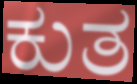
ಕುತ